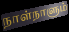
நாள்நாளும்